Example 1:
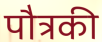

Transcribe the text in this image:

पौत्रकी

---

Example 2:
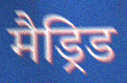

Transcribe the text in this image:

मैड्रिड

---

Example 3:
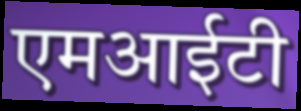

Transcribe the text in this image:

एमआईटी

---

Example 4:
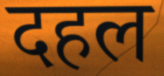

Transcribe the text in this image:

दहल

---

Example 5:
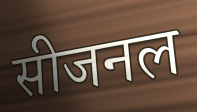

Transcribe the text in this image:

सीजनल